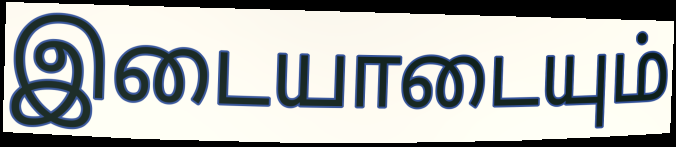
இடையாடையும்